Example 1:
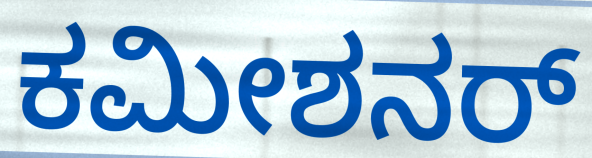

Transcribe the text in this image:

ಕಮೀಶನರ್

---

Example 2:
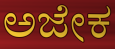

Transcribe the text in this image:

ಅಜೇಕ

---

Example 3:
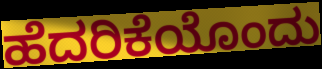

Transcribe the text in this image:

ಹೆದರಿಕೆಯೊಂದು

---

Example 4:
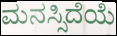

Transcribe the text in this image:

ಮನಸ್ಸಿದೆಯೆ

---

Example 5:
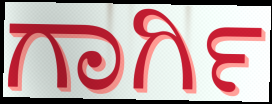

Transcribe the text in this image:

ಗಾರ್ಗಿ